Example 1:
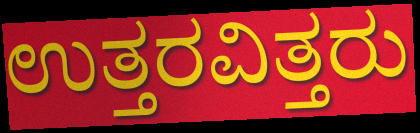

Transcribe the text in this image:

ಉತ್ತರವಿತ್ತರು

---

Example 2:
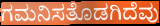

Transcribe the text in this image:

ಗಮನಿಸತೊಡಗಿದೆವು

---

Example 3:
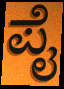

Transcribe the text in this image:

ಪೈ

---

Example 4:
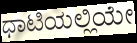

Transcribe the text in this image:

ಧಾಟಿಯಲ್ಲಿಯೇ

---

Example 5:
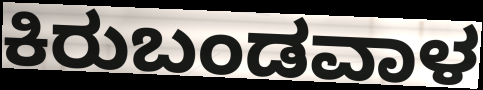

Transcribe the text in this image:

ಕಿರುಬಂಡವಾಳ